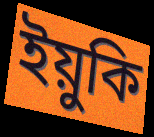
ইয়ুকি